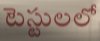
టెస్టులలో